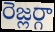
రెజ్లర్గా